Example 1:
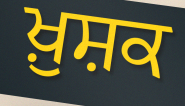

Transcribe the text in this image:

ਖ਼ੁਸ਼ਕ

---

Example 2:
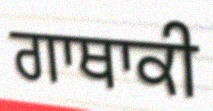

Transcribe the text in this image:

ਗਾਥਾਕੀ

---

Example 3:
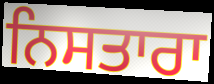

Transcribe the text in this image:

ਨਿਸਤਾਰਾ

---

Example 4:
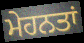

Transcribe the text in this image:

ਮੇਹਨਤਾਂ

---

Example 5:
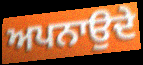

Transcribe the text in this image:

ਅਪਨਾਉਦੇ